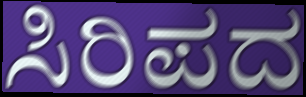
ಸಿರಿಪದ